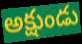
అక్షుండు